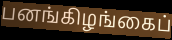
பனங்கிழங்கைப்